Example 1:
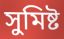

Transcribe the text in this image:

সুমিষ্ট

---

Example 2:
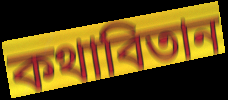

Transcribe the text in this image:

কথাবিতান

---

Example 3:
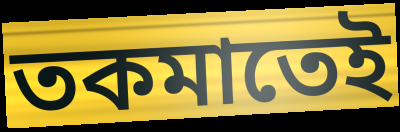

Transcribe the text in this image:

তকমাতেই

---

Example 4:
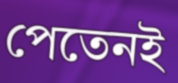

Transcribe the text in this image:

পেতেনই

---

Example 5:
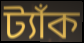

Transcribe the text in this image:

ট্যাঁক